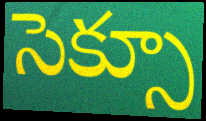
సెక్సూ